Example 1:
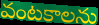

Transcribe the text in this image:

వంటకాలను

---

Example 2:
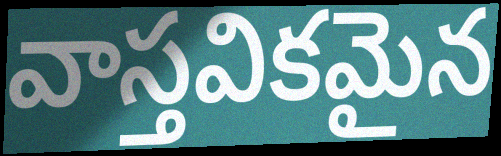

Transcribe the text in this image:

వాస్తవికమైన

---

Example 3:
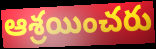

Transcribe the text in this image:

ఆశ్రయించరు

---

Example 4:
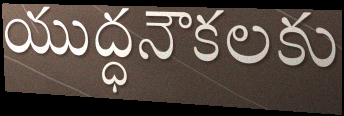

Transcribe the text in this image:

యుద్ధనౌకలకు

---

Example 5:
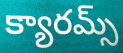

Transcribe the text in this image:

క్యారమ్స్